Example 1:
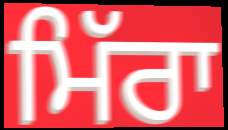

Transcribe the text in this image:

ਮਿੱਰਾ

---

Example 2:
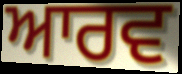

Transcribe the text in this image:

ਆਰਵ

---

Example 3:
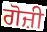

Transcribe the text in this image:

ਗੋਜ਼ੀ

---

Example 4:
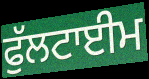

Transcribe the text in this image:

ਫੁੱਲਟਾਈਮ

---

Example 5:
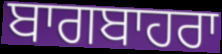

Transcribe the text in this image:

ਬਾਗਬਾਹਰਾ